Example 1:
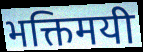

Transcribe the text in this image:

भक्तिमयी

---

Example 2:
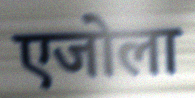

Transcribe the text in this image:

एजोला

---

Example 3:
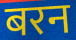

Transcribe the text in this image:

बरन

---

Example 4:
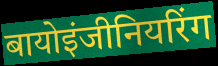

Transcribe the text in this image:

बायोइंजीनियरिंग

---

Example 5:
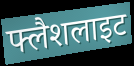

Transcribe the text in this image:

फ्लैशलाइट